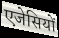
एजेसियों